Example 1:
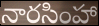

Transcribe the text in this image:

నారసింహా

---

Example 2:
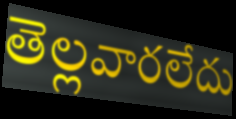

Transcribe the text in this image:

తెల్లవారలేదు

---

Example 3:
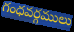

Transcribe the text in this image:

గంధవర్గములు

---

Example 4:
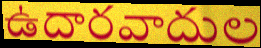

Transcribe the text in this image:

ఉదారవాదుల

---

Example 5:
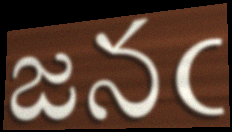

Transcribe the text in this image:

జనఁ